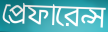
প্রেফারেন্স